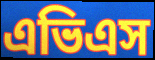
এভিএস